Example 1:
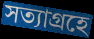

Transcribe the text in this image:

সত্যাগ্রহে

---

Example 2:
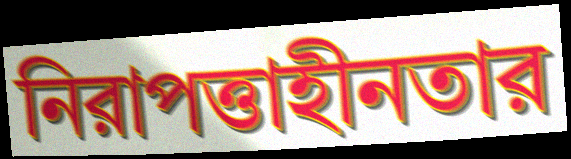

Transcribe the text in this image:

নিরাপত্তাহীনতার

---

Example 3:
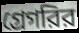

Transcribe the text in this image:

গ্রেগরির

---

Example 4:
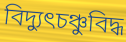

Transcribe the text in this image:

বিদ্যুৎচঞ্চুবিদ্ধ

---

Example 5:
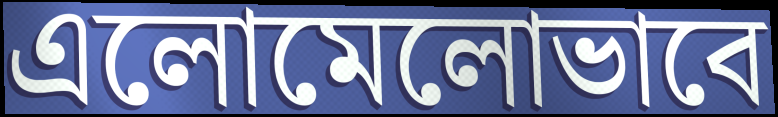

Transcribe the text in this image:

এলোমেলোভাবে